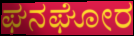
ಘನಘೋರ